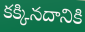
కక్కినదానికి